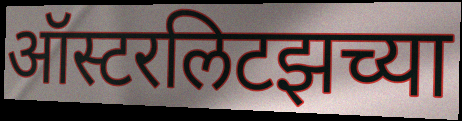
ऑस्टरलिटझच्या